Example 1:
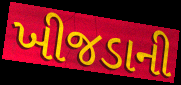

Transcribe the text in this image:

ખીજડાની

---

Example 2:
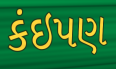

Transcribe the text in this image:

કંઇપણ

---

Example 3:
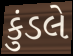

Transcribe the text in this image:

કુંડલે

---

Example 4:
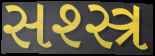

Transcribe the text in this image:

સશ્સ્ત્ર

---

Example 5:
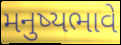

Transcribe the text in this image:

મનુષ્યભાવે